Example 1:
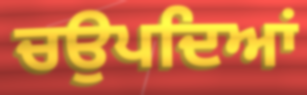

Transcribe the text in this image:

ਚਉਪਦਿਆਂ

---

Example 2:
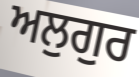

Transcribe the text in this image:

ਅਲੁਗੁਰ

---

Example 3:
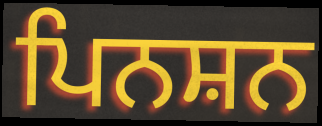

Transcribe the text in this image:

ਪਿਨਸ਼ਨ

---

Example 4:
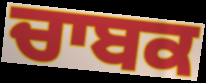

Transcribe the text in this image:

ਚਾਬਕ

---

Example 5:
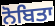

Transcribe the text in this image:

ਨੋਬਿਤਾ